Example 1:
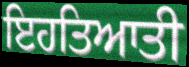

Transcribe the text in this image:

ਇਹਤਿਆਤੀ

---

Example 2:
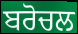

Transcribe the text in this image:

ਬਰੋਚਲ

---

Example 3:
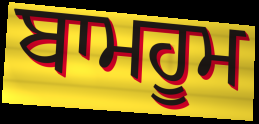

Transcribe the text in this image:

ਬਾਮਹੂਮ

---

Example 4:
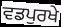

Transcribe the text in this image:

ਵਡਪੁਰਖੇ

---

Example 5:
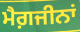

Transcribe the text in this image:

ਮੈਗ਼ਜੀਨਾਂ